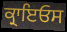
ਕ੍ਰਾਇਓਸ